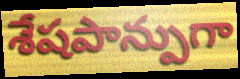
శేషపాన్పుగా